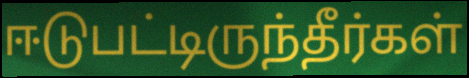
ஈடுபட்டிருந்தீர்கள்